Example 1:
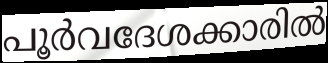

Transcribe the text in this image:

പൂർവദേശക്കാരിൽ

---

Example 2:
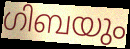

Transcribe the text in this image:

ഗിബയും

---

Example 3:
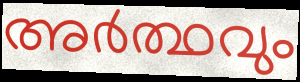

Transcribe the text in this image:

അർത്ഥവും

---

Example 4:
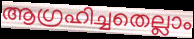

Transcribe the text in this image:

ആഗ്രഹിച്ചതെല്ലാം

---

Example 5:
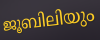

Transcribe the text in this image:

ജൂബിലിയും